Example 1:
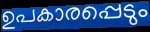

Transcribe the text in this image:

ഉപകാരപ്പെടും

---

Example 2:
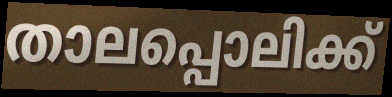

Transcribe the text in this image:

താലപ്പൊലിക്ക്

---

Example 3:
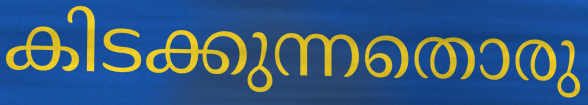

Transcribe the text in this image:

കിടക്കുന്നതൊരു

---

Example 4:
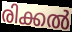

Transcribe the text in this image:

രിക്കൽ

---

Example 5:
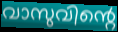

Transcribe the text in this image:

വാസുവിന്റെ